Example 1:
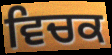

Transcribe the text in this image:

ਵਿਚਕ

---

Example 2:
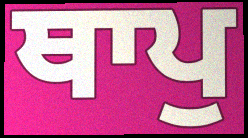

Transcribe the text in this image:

ਥਾਪੁ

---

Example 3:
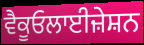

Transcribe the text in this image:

ਵੈਕੂਓਲਾਈਜ਼ੇਸ਼ਨ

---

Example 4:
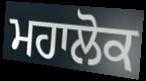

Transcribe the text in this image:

ਮਹਾਲੋਕ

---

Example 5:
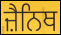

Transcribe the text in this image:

ਜ਼ੈਨਿਥ